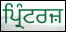
ਪ੍ਰਿੰਟਰਜ਼